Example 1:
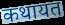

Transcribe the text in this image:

कथायत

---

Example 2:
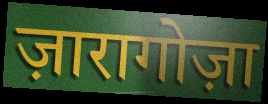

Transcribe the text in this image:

ज़ारागोज़ा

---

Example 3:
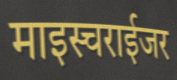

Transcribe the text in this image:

माइस्चराईजर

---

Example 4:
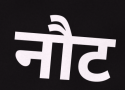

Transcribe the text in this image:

नौट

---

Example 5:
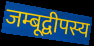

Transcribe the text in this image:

जम्बूद्वीपस्य